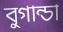
বুগান্ডা